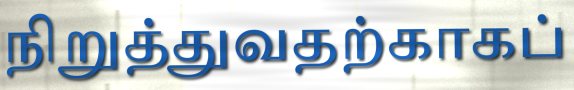
நிறுத்துவதற்காகப்